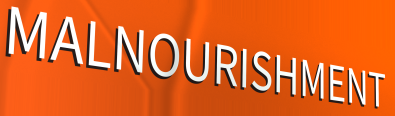
MALNOURISHMENT